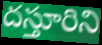
దస్తూరిని